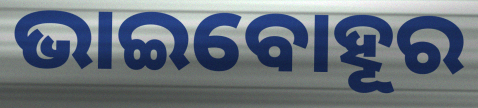
ଭାଇବୋହୂର